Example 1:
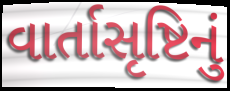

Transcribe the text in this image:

વાર્તાસૃષ્ટિનું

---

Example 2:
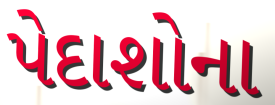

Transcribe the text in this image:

પેદાશોના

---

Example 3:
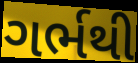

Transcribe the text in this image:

ગર્ભથી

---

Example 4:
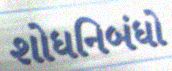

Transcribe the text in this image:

શોધનિબંધો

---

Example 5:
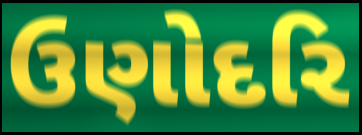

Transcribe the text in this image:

ઉણોદરિ